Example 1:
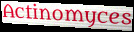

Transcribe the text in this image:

Actinomyces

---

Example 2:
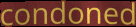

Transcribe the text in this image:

condoned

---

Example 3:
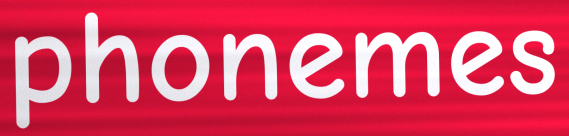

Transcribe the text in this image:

phonemes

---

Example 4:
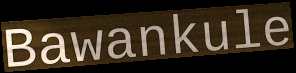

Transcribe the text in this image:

Bawankule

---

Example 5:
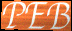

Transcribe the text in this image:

PEB